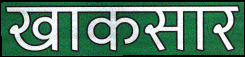
खाकसार